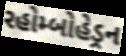
રહોમ્બોહેડ્રન